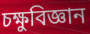
চক্ষুবিজ্ঞান